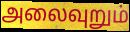
அலைவுறும்